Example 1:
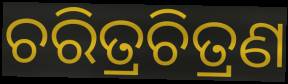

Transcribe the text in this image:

ଚରିତ୍ରଚିତ୍ରଣ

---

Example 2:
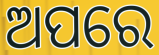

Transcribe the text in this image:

ଅପରେ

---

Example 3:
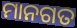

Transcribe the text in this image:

ମାନଗତ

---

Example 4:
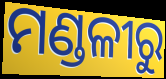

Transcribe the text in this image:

ମଣ୍ଡଳୀରୁ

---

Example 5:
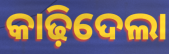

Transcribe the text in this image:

କାଢ଼ିଦେଲା